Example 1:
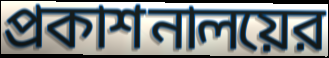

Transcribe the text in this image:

প্রকাশনালয়ের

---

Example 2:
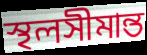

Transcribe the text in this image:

স্থলসীমান্ত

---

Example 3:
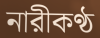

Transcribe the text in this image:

নারীকণ্ঠ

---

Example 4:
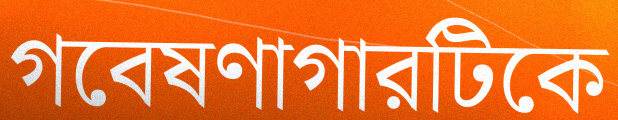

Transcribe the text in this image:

গবেষণাগারটিকে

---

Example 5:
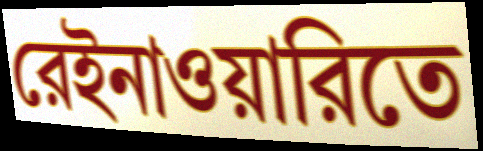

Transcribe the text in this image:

রেইনাওয়ারিতে